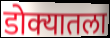
डोक्‍यातला